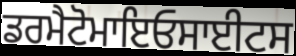
ਡਰਮੈਟੋਮਾਇਓਸਾਈਟਸ